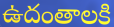
ఉదంతాలకి